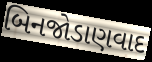
બિનજોડાણવાદ